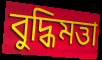
বুদ্ধিমত্তা